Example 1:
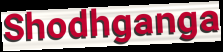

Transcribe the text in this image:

Shodhganga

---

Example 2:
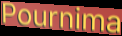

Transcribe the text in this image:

Pournima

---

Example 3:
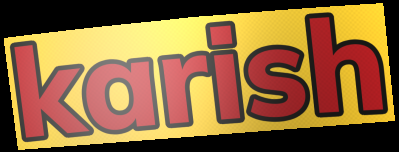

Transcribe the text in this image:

karish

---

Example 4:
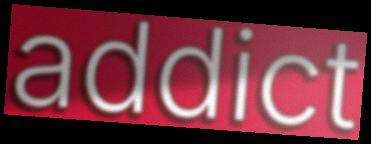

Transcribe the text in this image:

addict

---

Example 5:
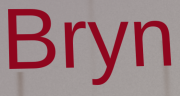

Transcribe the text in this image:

Bryn